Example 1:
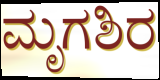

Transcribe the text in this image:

ಮೃಗಶಿರ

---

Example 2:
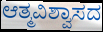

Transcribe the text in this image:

ಆತ್ಮವಿಶ್ವಾಸದ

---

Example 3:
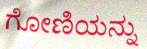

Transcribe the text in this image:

ಗೋಣಿಯನ್ನು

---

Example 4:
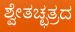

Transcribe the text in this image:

ಶ್ವೇತಚ್ಛತ್ರದ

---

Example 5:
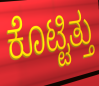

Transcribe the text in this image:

ಕೊಟ್ಟಿತ್ತು